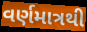
વર્ણમાત્રથી